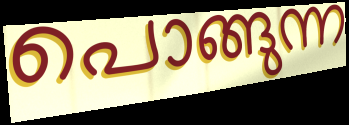
പൊങ്ങുന്ന